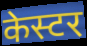
केस्टर